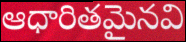
ఆధారితమైనవి